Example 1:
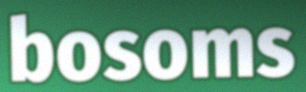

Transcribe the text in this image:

bosoms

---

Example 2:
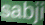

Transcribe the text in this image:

sabji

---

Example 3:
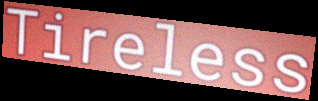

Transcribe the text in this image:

Tireless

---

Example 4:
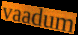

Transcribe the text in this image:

vaadum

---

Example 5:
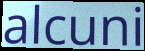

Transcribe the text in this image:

alcuni